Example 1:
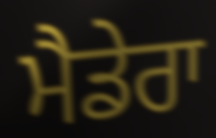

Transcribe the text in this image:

ਮੈਡੇਰਾ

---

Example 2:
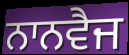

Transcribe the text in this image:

ਨਾਨਵੈਜ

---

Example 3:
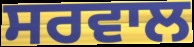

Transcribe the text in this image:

ਸਰਵਾਲ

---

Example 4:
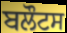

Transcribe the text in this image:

ਬਲੌਟਸ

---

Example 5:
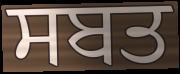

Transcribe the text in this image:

ਸਬਤ